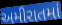
અમીરાતમાં